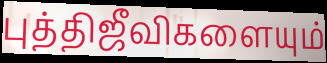
புத்திஜீவிகளையும்